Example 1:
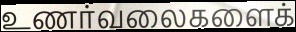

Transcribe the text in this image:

உணர்வலைகளைக்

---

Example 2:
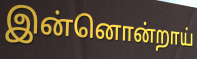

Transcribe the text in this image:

இன்னொன்றாய்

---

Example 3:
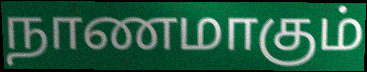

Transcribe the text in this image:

நாணமாகும்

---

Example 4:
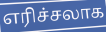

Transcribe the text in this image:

எரிச்சலாக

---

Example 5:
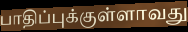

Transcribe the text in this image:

பாதிப்புக்குள்ளாவது